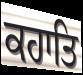
ਕਹਾਤਿ